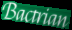
Bactrian